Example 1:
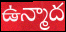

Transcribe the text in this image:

ఉన్మాద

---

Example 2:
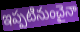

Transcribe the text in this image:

ఇప్పటినుంచైనా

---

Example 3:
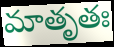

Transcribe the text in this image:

మాతృతః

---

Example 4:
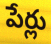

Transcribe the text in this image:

పేర్లు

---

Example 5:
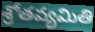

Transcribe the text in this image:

శ్రోతవ్యమితి